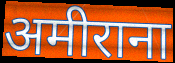
अमीराना